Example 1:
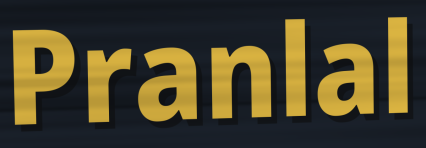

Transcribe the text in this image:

Pranlal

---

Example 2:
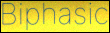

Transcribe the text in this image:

Biphasic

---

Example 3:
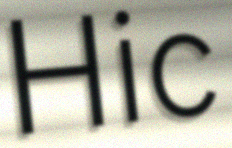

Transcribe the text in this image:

Hic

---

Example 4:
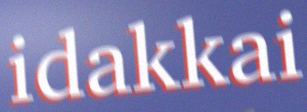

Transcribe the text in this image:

idakkai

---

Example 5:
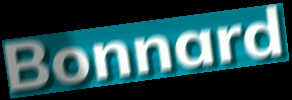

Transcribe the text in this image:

Bonnard